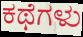
ಕಥೆಗಳು